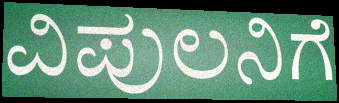
ವಿಪುಲನಿಗೆ